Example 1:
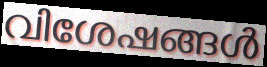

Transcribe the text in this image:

വിശേഷങ്ങൾ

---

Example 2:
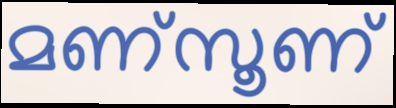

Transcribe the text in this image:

മണ്സൂണ്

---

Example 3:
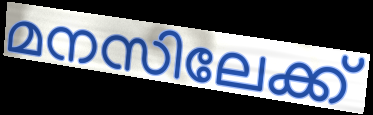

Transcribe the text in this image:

മനസിലേക്ക്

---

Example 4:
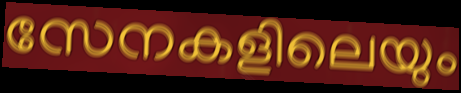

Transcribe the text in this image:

സേനകളിലെയും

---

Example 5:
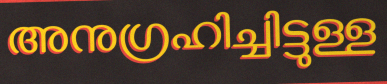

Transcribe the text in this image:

അനുഗ്രഹിച്ചിട്ടുള്ള